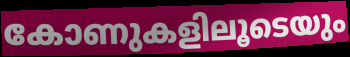
കോണുകളിലൂടെയും